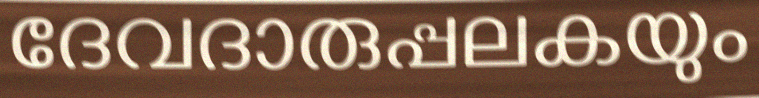
ദേവദാരുപ്പലകയും